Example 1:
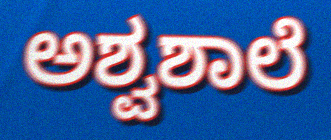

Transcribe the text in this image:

ಅಶ್ವಶಾಲೆ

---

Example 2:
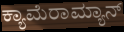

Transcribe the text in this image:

ಕ್ಯಾಮೆರಾಮ್ಯಾನ್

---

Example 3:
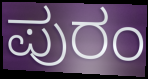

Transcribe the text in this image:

ಪುರಂ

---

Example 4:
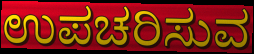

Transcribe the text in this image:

ಉಪಚರಿಸುವ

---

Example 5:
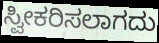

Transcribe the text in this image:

ಸ್ವೀಕರಿಸಲಾಗದು